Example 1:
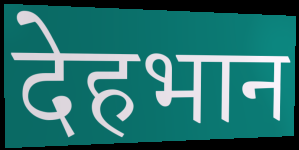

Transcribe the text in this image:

देहभान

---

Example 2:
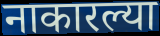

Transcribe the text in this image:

नाकारल्या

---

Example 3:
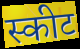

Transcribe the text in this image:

स्कीट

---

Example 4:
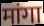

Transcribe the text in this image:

मांगा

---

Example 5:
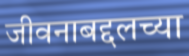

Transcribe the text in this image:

जीवनाबद्दलच्या